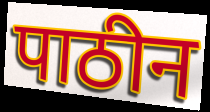
पाठीन